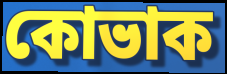
কোভাক